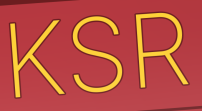
KSR